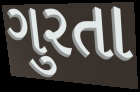
ગુરતા